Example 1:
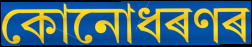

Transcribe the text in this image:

কোনোধৰণৰ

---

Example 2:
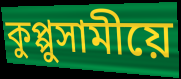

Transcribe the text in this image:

কুপ্পুসামীয়ে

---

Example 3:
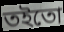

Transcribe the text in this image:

তইতো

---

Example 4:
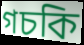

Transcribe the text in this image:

গচকি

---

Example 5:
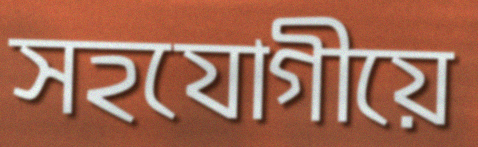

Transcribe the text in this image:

সহযোগীয়ে